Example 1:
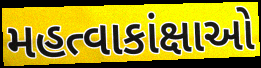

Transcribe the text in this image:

મહત્વાકાંક્ષાઓ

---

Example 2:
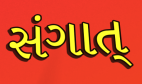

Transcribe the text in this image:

સંગાત્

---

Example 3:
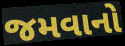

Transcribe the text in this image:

જમવાનો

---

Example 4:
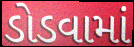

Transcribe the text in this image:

ડોડવામાં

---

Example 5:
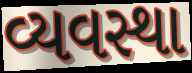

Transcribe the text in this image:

વ્યવસ્થા